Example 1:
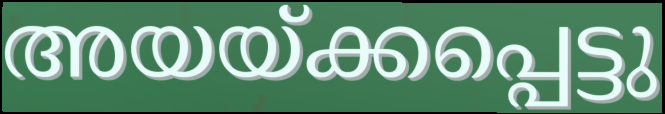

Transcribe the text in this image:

അയയ്ക്കപ്പെട്ടു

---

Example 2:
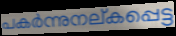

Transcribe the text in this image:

പകർന്നുനല്കപ്പെട്ട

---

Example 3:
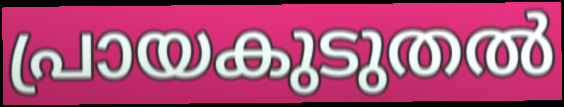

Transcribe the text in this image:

പ്രായകുടുതൽ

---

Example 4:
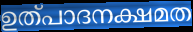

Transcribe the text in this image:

ഉത്പാദനക്ഷമത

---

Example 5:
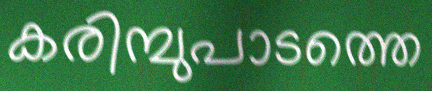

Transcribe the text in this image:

കരിമ്പുപാടത്തെ